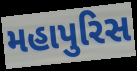
મહાપુરિસ